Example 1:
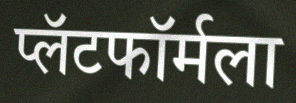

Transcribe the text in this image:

प्लॅटफॉर्मला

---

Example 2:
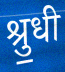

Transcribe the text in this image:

श्रु॒धी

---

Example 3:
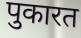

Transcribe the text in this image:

पुकारत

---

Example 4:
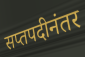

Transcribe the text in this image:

सप्तपदीनंतर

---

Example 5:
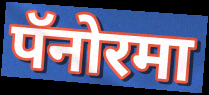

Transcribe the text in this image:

पॅनोरमा